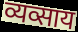
व्यव्साय